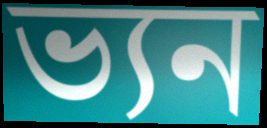
ভ্যন